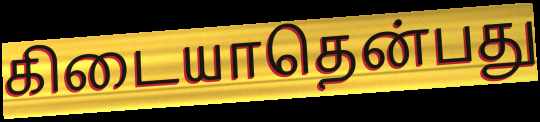
கிடையாதென்பது